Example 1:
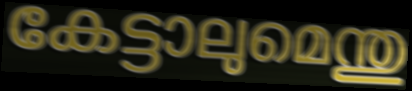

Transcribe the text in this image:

കേട്ടാലുമെന്തു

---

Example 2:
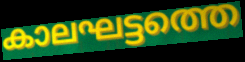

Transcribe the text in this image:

കാലഘട്ടത്തെ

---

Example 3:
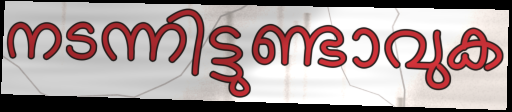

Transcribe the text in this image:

നടന്നിട്ടുണ്ടാവുക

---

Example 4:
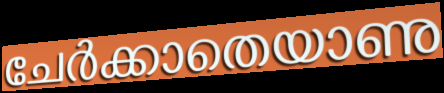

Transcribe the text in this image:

ചേർക്കാതെയാണു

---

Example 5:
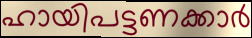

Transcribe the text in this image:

ഹായിപട്ടണക്കാർ